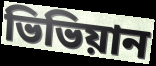
ভিভিয়ান